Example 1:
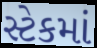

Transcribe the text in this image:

સ્ટેકમાં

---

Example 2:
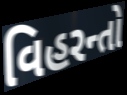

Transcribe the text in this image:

વિહરન્તો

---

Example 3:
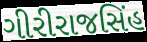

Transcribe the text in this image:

ગીરીરાજસિંહ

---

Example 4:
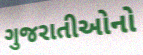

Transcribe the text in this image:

ગુજરાતીઓનો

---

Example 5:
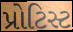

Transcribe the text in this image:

પ્રોટિસ્ટ